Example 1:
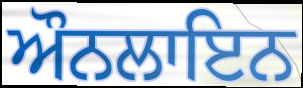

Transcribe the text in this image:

ਔਨਲਾਇਨ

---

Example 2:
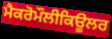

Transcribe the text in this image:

ਮੈਕਰੋਮੌਲੀਕਿਊਲਰ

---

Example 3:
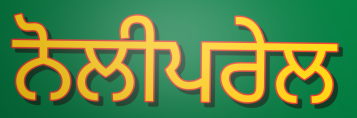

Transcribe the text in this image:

ਨੋਲੀਪਰੇਲ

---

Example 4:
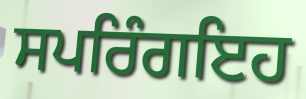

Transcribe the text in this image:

ਸਪਰਿੰਗਇਹ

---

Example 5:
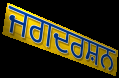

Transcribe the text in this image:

ਜਗਦਰਸ਼ਨ